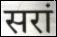
सरां